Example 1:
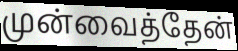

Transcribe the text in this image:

முன்வைத்தேன்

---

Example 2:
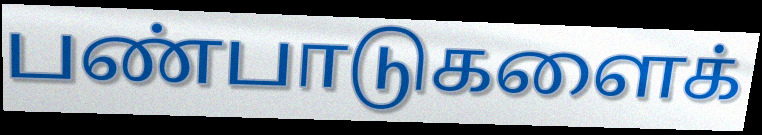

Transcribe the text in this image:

பண்பாடுகளைக்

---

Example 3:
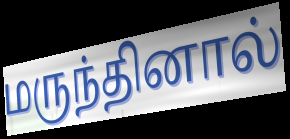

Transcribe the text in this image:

மருந்தினால்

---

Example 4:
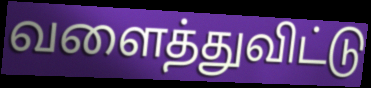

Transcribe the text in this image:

வளைத்துவிட்டு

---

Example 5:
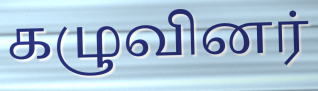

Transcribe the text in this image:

கழுவினர்